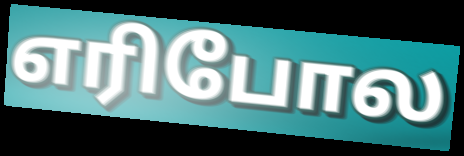
எரிபோல